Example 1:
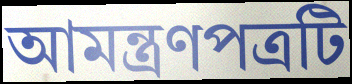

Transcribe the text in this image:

আমন্ত্রণপত্রটি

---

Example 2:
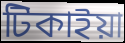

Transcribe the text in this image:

টিকাইয়া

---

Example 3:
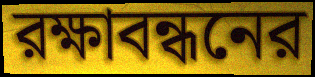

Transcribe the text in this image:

রক্ষাবন্ধনের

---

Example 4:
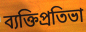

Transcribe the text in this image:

ব্যক্তিপ্রতিভা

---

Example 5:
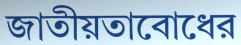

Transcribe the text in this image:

জাতীয়তাবোধের